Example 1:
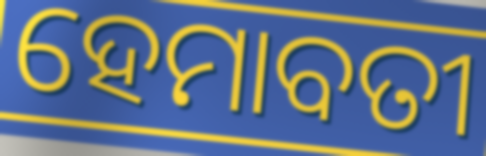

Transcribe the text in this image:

ହେମାବତୀ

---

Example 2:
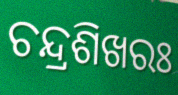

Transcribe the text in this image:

ଚନ୍ଦ୍ରଶିଖରଃ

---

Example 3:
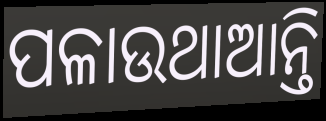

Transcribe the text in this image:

ପଳାଉଥାଆନ୍ତି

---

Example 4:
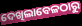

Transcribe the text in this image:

ଦେଖିଲାବେଳଠାରୁ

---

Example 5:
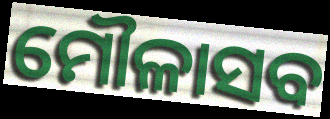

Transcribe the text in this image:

ମୌଳାସବ